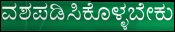
ವಶಪಡಿಸಿಕೊಳ್ಳಬೇಕು